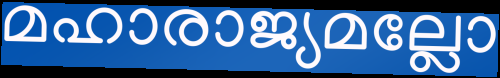
മഹാരാജ്യമല്ലോ